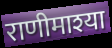
राणीमाश्या